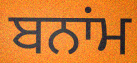
ਬਨਾਂਮ